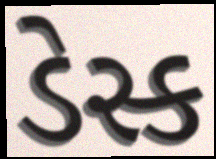
ડેસ્ક